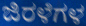
ಜಿರಳೆಗಳ